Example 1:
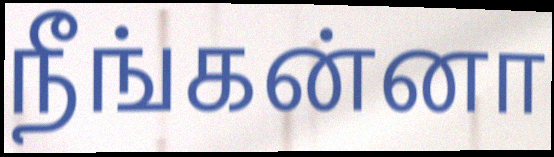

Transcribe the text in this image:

நீங்கன்னா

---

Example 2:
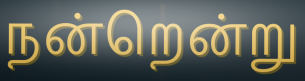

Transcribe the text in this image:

நன்றென்று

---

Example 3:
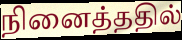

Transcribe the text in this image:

நினைத்ததில்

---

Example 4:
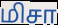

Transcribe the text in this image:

மிசா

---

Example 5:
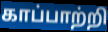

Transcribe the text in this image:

காப்பாற்றி